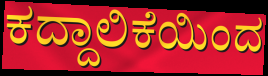
ಕದ್ದಾಲಿಕೆಯಿಂದ